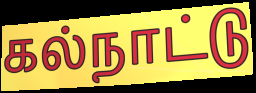
கல்நாட்டு